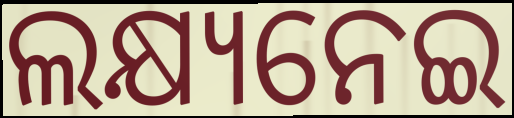
ଲକ୍ଷ୍ୟନେଇ